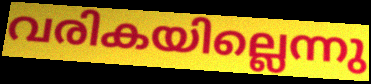
വരികയില്ലെന്നു